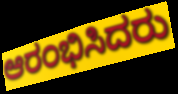
ಆರಂಭಿಸಿದರು